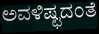
ಅವಳಿಷ್ಟದಂತೆ